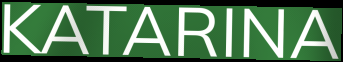
KATARINA